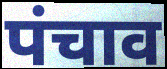
पंचाव